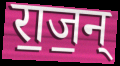
रा॒ज॒न्